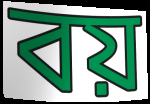
বয়